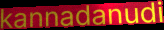
kannadanudi